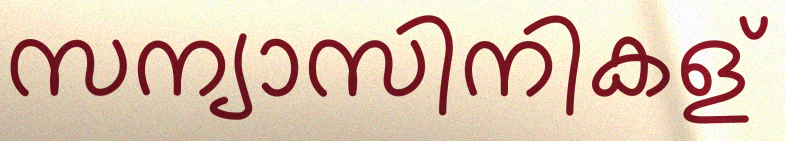
സന്യാസിനികള്